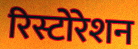
रिस्टोरेशन